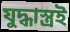
যুদ্ধাস্ত্রই